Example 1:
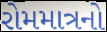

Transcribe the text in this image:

રોમમાત્રનો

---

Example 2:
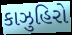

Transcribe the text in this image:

કાઝુહિરો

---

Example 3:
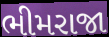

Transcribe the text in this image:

ભીમરાજા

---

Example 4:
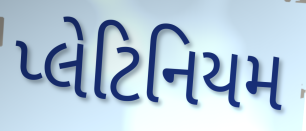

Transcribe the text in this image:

પ્લેટિનિયમ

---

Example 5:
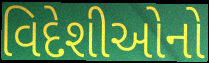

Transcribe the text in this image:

વિદેશીઓનો